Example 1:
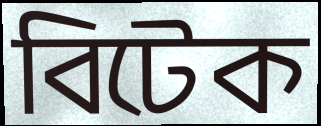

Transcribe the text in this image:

বিটেক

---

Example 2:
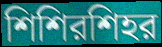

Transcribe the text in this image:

শিশিরশিহর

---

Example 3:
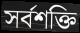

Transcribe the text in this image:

সর্বশক্তি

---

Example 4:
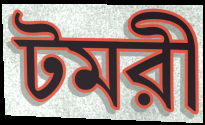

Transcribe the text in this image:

টমরী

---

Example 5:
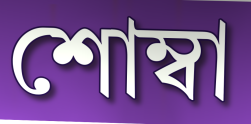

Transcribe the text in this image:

শোম্বা